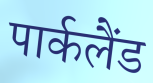
पार्कलैंड